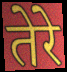
तेरे